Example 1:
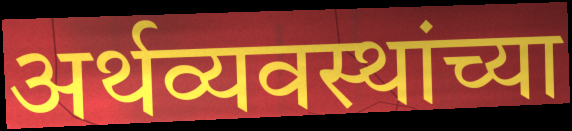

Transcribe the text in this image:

अर्थव्यवस्थांच्या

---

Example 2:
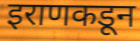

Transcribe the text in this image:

इराणकडून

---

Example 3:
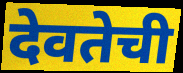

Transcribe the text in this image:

देवतेची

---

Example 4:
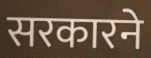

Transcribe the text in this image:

सरकारने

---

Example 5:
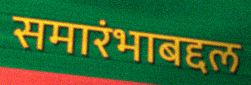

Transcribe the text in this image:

समारंभाबद्दल